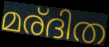
മര്ദിത